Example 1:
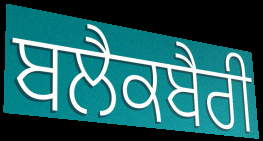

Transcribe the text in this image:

ਬਲੈਕਬੈਰੀ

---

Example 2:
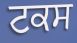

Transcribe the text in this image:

ਟਕਸ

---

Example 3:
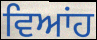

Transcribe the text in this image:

ਵਿਆਂਹ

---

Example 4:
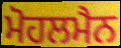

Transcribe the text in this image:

ਮੋਹਲਮੈਨ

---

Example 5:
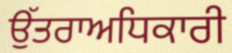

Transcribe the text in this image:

ਉੱਤਰਾਅਧਿਕਾਰੀ